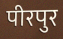
पीरपुर